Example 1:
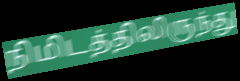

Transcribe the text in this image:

நிமிடத்திலிருந்து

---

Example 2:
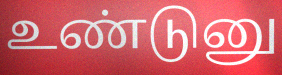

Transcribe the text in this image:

உண்டுனு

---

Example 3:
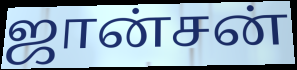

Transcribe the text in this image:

ஜான்சன்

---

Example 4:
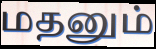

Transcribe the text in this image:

மதனும்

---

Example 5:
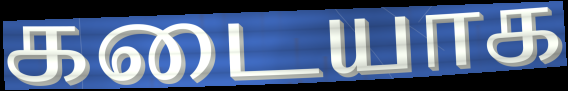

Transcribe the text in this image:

கடையாக